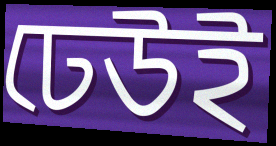
ঢেউই